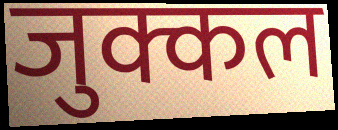
जुक्कल